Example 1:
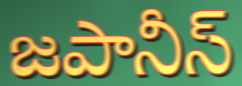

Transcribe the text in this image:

జపానీస్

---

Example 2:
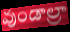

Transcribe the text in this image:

వుండాల్రా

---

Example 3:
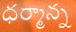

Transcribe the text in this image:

ధర్మాన్న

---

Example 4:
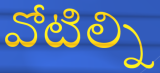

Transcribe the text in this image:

వోటిల్ని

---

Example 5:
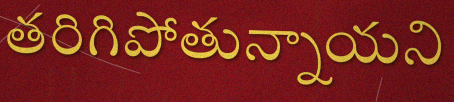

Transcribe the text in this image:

తరిగిపోతున్నాయని